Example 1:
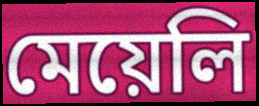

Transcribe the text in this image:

মেয়েলি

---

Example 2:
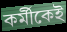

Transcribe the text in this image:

কর্মীকেই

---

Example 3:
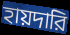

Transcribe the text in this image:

হায়দারি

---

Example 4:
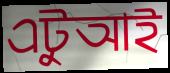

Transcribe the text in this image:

এটুআই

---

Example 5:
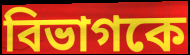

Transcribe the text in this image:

বিভাগকে